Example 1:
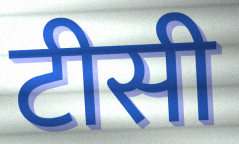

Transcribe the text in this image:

टीसी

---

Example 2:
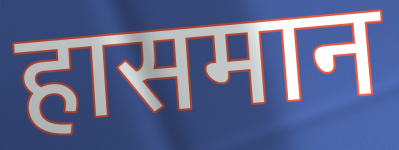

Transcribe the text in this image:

हासमान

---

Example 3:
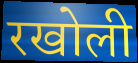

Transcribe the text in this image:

रखोली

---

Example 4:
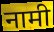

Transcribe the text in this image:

नामी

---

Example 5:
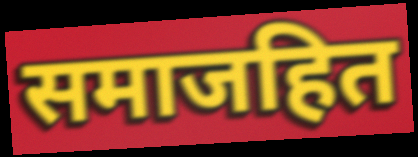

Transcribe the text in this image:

समाजहित